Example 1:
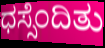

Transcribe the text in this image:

ಧಸ್ಸೆಂದಿತು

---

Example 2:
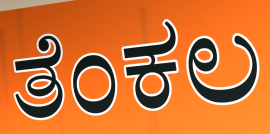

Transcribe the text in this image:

ತೆಂಕಲ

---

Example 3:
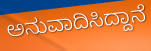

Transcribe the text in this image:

ಅನುವಾದಿಸಿದ್ದಾನೆ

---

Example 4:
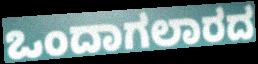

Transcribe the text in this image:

ಒಂದಾಗಲಾರದ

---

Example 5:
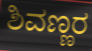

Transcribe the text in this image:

ಶಿವಣ್ಣರ